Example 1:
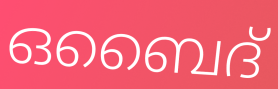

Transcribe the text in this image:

ഒബൈദ്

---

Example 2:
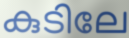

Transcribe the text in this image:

കുടിലേ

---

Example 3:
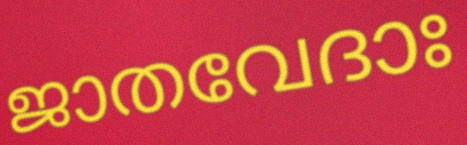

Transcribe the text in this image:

ജാതവേദാഃ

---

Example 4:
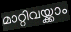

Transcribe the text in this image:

മാറ്റിവയ്ക്കാം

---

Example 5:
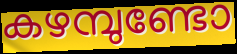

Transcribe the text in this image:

കഴമ്പുണ്ടോ